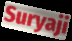
Suryaji